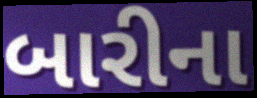
બારીના